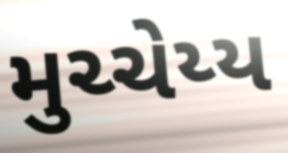
મુચ્ચેય્ય